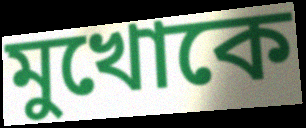
মুখোকে